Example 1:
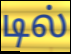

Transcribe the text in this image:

டில்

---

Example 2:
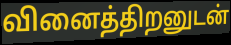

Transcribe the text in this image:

வினைத்திறனுடன்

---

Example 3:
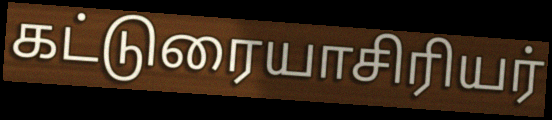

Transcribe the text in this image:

கட்டுரையாசிரியர்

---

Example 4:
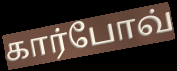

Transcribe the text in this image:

கார்போவ்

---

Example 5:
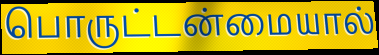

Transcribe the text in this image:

பொருட்டன்மையால்